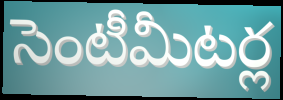
సెంటీమీటర్ల